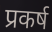
प्रकर्ष